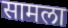
सामला